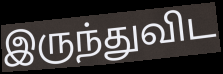
இருந்துவிட